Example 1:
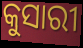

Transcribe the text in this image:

କୁସାରୀ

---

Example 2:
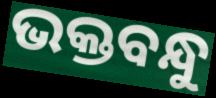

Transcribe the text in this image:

ଭକ୍ତବନ୍ଧୁ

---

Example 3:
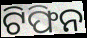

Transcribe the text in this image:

ଟିଫିନ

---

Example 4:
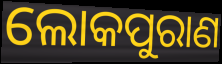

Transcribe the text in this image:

ଲୋକପୁରାଣ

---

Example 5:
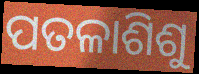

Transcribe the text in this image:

ପତଳାଶିଶୁ